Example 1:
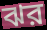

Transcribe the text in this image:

ঝর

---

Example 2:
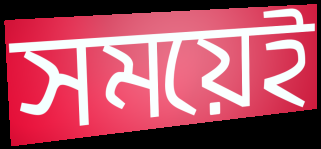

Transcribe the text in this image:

সময়েই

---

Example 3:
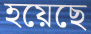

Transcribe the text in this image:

হয়েছে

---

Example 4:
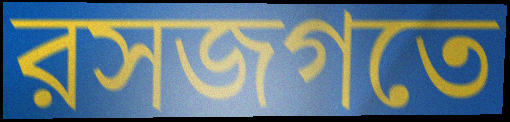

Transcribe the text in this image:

রসজগতে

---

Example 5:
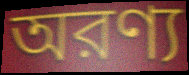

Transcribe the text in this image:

অরণ্য